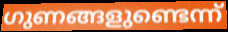
ഗുണങ്ങളുണ്ടെന്ന്